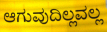
ಆಗುವುದಿಲ್ಲವಲ್ಲ